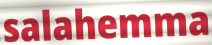
salahemma